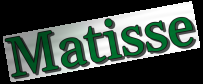
Matisse